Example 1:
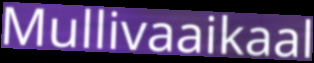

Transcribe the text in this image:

Mullivaaikaal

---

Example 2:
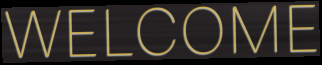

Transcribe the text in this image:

WELCOME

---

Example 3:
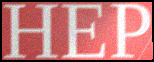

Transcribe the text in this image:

HEP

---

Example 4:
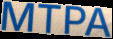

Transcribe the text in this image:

MTPA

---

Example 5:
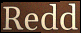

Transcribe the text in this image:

Redd